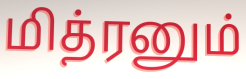
மித்ரனும்